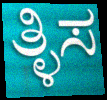
ತ್ಳಿಸ